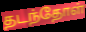
தடந்தோள்